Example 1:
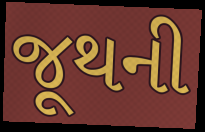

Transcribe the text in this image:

જૂથની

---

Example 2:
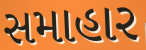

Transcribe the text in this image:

સમાહાર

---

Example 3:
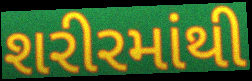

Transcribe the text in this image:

શરીરમાંથી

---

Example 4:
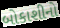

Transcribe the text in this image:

બોકાશીનો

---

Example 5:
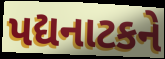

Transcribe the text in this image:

પદ્યનાટકને